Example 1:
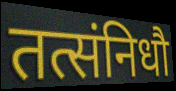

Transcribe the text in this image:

तत्संनिधौ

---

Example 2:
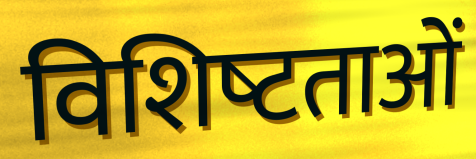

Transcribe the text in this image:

विशिष्‍टताओं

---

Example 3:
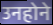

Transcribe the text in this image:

उनहोने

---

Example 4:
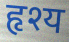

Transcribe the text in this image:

हृश्य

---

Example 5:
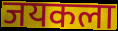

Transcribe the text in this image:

जयकला